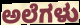
ಅಲೆಗಳು